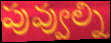
పువ్వుల్ని